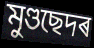
মুণ্ডছেদৰ